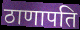
ठाणापति